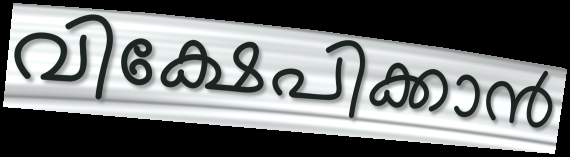
വിക്ഷേപിക്കാൻ